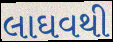
લાઘવથી